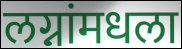
लग्नांमधला